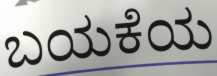
ಬಯಕೆಯ